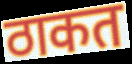
ठाकत